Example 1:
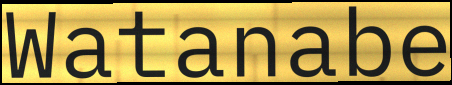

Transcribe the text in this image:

Watanabe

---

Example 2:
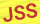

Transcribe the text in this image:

JSS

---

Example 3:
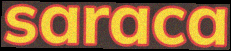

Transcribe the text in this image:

saraca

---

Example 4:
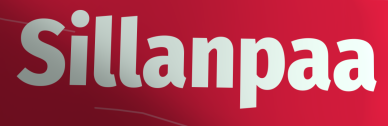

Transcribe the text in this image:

Sillanpaa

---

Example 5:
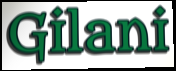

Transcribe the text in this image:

Gilani